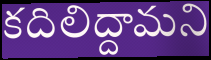
కదిలిద్దామని